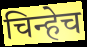
चिन्हेच